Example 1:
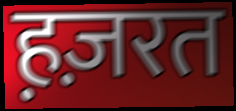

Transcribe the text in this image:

ह़ज़रत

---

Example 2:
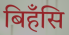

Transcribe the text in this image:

बिहँसि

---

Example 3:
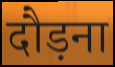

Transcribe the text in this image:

दौड़ना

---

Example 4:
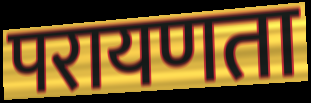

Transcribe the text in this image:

परायणता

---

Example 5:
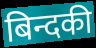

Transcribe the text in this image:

बिन्दकी